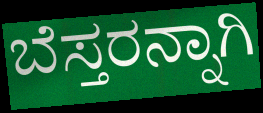
ಬೆಸ್ತರನ್ನಾಗಿ